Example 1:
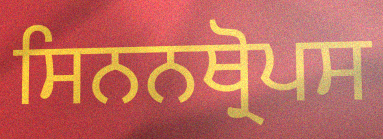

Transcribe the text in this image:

ਸਿਨਨਥ੍ਰੋਪਸ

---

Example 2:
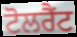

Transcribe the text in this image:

ਟੋਲਰੈਂਟ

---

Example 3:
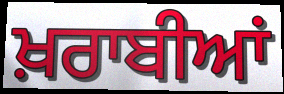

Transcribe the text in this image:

ਖ਼ਰਾਬੀਆਂ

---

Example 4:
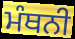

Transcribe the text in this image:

ਮੰਥਨੀ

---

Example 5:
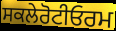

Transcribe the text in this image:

ਸਕਲੇਰੋਟੀਓਰਮ